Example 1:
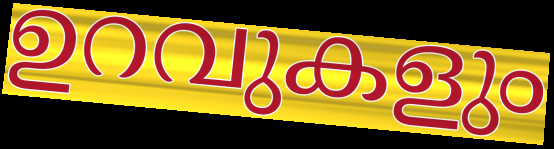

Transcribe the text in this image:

ഉറവുകളും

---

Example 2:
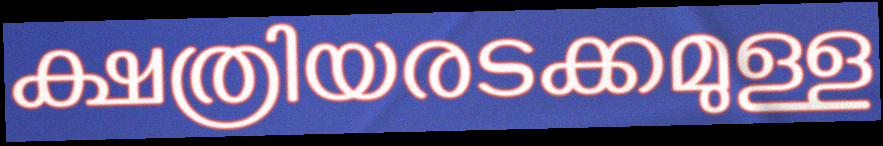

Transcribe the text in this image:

ക്ഷത്രിയരടക്കമുള്ള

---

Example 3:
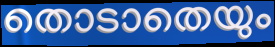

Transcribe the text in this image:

തൊടാതെയും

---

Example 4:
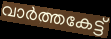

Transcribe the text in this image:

വാർത്തകേട്ട്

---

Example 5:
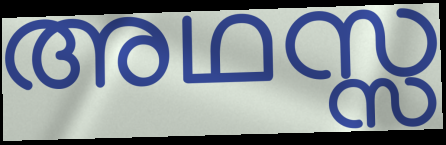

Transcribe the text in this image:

അഥസ്സ